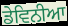
ਡੇਵਿਨੀਆ